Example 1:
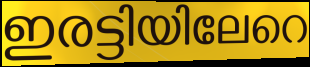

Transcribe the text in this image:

ഇരട്ടിയിലേറെ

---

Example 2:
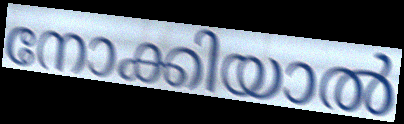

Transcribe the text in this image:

നോക്കിയാൽ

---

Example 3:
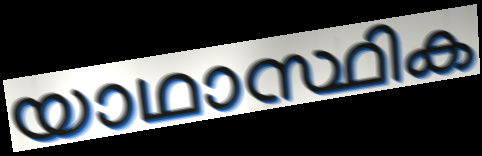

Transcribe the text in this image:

യാഥാസ്ഥിക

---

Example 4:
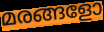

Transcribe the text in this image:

മരങ്ങളോ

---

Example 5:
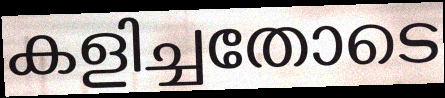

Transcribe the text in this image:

കളിച്ചതോടെ